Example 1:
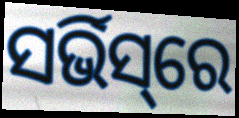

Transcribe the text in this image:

ସର୍ଭିସ୍‌ରେ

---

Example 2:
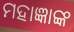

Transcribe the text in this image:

ମହାଜ୍ଞାଙ୍କ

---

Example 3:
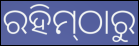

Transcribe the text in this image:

ରହିମ୍‌ଠାରୁ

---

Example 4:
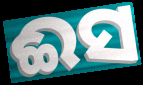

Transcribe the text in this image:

ଈସ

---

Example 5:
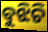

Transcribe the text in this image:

ବୁଝିଚି